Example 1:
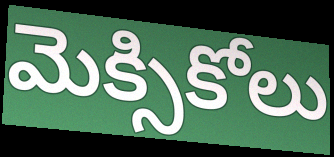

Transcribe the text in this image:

మెక్సికోలు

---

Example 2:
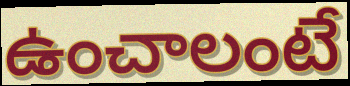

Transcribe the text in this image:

ఉంచాలంటే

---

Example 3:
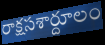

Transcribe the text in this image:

రాక్షసశార్దూలం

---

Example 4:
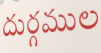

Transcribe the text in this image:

దుర్గముల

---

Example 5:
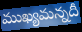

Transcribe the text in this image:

ముఖ్యమన్నదీ